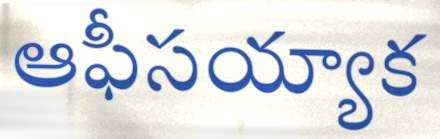
ఆఫీసయ్యాక